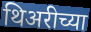
थिअरीच्या